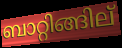
ബാറ്റിങ്ങില്